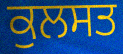
ਕੁਲਸਤ